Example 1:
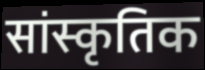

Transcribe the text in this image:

सांस्कृतिक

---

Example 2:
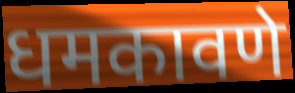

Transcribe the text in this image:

धमकावणे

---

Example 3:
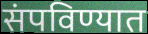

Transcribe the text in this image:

संपविण्यात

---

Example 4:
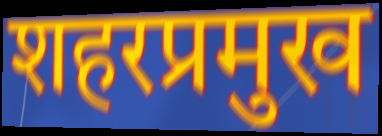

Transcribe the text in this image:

शहरप्रमुख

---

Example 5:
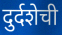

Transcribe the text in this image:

दुर्दशेची